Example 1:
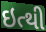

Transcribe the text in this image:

ઇત્થી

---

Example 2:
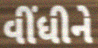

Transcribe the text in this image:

વીંધીને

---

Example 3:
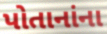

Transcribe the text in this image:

પોતાનાંના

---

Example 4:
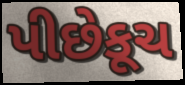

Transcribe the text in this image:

પીછેકૂચ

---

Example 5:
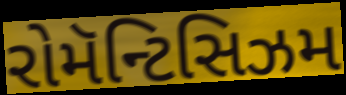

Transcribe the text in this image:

રોમૅન્ટિસિઝમ